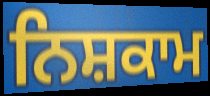
ਨਿਸ਼ਕਾਮ